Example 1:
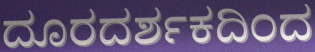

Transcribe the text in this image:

ದೂರದರ್ಶಕದಿಂದ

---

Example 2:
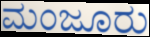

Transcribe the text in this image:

ಮಂಜೂರು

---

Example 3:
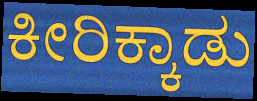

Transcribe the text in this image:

ಕೀರಿಕ್ಕಾಡು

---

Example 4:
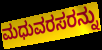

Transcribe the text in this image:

ಮಧುವರಸರನ್ನು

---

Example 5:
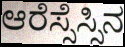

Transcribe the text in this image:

ಆರೆಸ್ಸೆಸ್ಸಿನ